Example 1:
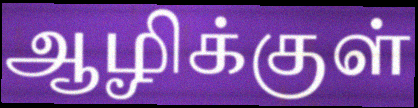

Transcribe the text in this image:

ஆழிக்குள்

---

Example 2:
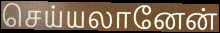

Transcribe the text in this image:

செய்யலானேன்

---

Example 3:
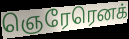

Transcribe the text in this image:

ஞெரேரெனக்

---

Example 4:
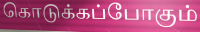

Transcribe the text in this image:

கொடுக்கப்போகும்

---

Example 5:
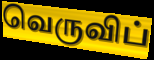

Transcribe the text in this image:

வெருவிப்